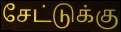
சேட்டுக்கு